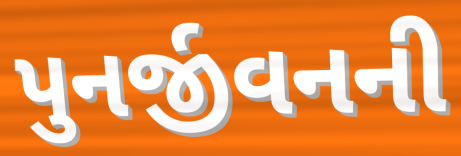
પુનર્જીવનની